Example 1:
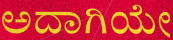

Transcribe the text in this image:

ಅದಾಗಿಯೇ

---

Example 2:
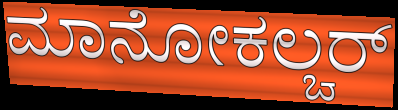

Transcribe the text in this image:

ಮಾನೋಕಲ್ಚರ್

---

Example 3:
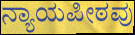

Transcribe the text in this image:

ನ್ಯಾಯಪೀಠವು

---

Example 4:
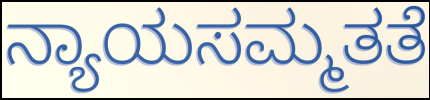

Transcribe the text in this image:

ನ್ಯಾಯಸಮ್ಮತತೆ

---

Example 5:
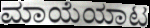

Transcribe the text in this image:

ಮಾಯೆಯಾಟ